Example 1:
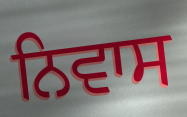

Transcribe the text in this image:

ਨਿਵਾਸ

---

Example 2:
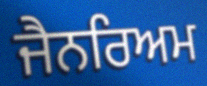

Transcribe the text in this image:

ਜੈਨਰਿਅਮ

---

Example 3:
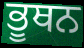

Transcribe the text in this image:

ਭੂਥਨ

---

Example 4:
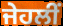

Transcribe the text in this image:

ਜੇਹਲੀਂ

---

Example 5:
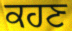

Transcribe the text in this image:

ਕਹਣ